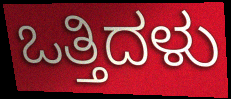
ಒತ್ತಿದಳು